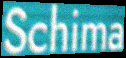
Schima